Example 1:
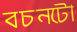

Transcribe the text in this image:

বচনটো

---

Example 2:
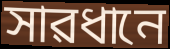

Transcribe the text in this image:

সাৱধানে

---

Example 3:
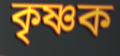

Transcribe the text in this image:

কৃষ্ণক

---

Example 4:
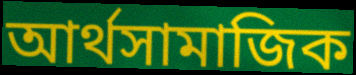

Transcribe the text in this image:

আৰ্থসামাজিক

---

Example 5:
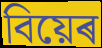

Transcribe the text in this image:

বিয়েৰ